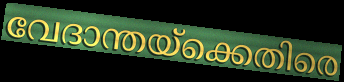
വേദാന്തയ്ക്കെതിരെ